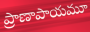
ప్రాణాపాయమూ